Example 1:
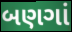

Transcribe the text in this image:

બણગાં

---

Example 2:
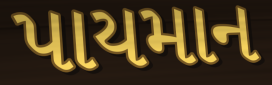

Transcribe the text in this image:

પાયમાન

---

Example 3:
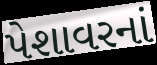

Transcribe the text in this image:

પેશાવરનાં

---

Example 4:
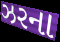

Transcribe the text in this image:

ઝરના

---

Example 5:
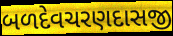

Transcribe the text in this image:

બળદેવચરણદાસજી